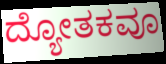
ದ್ಯೋತಕವೂ